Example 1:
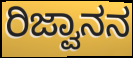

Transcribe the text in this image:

ರಿಜ್ವಾನನ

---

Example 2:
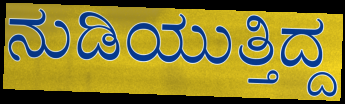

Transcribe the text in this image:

ನುಡಿಯುತ್ತಿದ್ದ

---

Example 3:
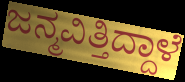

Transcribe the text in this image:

ಜನ್ಮವಿತ್ತಿದ್ದಾಳೆ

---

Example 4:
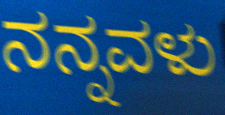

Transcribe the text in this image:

ನನ್ನವಳು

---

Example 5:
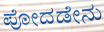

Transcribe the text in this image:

ಪೋದಡೇನು